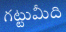
గట్టుమీది